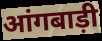
आंगबाड़ी